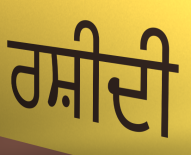
ਰਸ਼ੀਦੀ